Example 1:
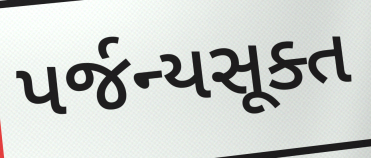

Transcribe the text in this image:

પર્જન્યસૂક્ત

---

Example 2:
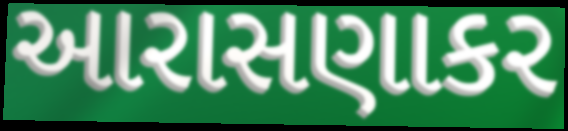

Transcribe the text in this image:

આરાસણાકર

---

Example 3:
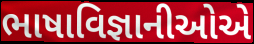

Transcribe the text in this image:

ભાષાવિજ્ઞાનીઓએ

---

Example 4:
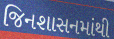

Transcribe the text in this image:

જિનશાસનમાંથી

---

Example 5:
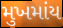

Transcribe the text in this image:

મુખમાંય